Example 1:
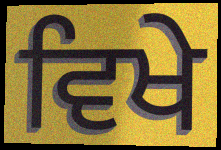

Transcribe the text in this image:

ਵਿਖੇ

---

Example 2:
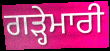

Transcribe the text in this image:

ਗੜ੍ਹੇਮਾਰੀ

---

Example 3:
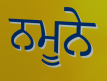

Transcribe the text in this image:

ਨਮੂਨੇ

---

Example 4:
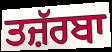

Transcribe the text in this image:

ਤਜ਼ੱਰਬਾ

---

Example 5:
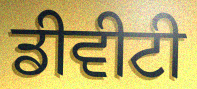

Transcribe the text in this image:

ਡੀਵੀਟੀ